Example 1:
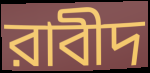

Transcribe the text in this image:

রাবীদ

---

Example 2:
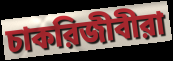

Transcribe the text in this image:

চাকরিজীবীরা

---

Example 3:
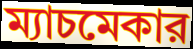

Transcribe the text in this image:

ম্যাচমেকার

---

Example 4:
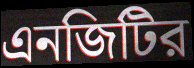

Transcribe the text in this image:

এনজিটির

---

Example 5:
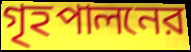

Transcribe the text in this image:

গৃহপালনের